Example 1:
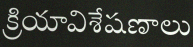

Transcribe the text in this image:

క్రియావిశేషణాలు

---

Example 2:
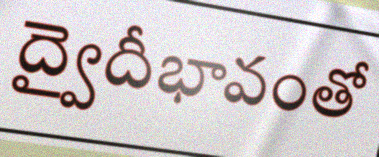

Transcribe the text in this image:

ద్వైదీభావంతో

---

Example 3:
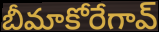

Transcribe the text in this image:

బీమాకోరేగావ్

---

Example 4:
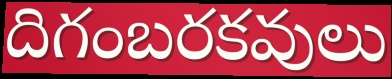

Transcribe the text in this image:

దిగంబరకవులు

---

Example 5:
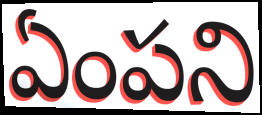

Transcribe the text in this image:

ఏంపని